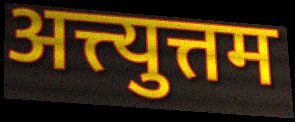
अत्त्युत्तम